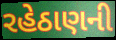
રહેઠાણની